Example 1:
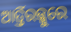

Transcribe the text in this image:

ଆର୍ତ୍ତିରଜ୍ଜୁରେ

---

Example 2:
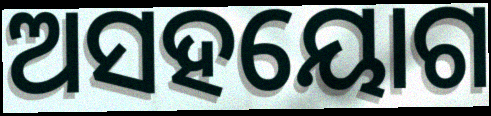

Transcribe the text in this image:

ଅସହୟୋଗ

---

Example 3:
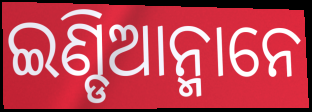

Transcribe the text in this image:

ଇଣ୍ଡିଆନ୍ମାନେ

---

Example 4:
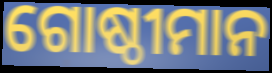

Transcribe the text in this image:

ଗୋଷ୍ଠୀମାନ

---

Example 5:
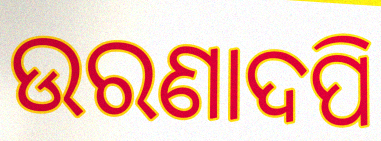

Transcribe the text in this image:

ଉରଣାଦପି